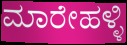
ಮಾರೇಹಳ್ಳಿ